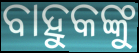
ବାହୁକଙ୍କୁ